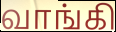
வாங்கி